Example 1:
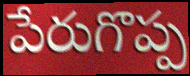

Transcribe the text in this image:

పేరుగొప్ప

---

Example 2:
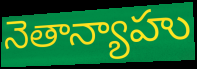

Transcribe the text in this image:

నెతాన్యాహు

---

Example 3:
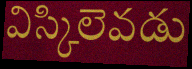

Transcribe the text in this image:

విస్కిలెవడు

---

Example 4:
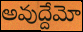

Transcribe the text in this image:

అవుద్దేమో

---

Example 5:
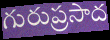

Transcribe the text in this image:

గురుప్రసాద